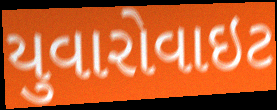
યુવારોવાઇટ